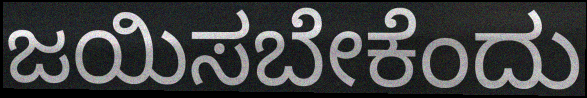
ಜಯಿಸಬೇಕೆಂದು